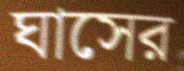
ঘাসের